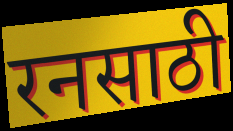
रनसाठी